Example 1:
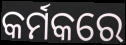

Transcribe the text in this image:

କର୍ମକରେ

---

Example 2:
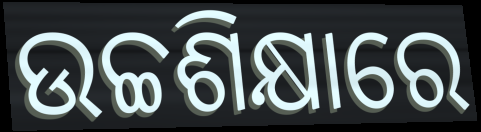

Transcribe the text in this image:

ଉଚ୍ଚଶିକ୍ଷାରେ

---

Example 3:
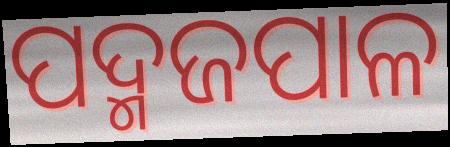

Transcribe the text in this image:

ପଦ୍ମଜପାଳ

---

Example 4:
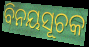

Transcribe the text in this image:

ବିନୟସୂଚକ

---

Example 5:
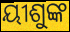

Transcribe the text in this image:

ୟୀଶୁଙ୍କ